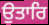
ਉਤਾਰਿ